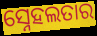
ସ୍ନେହଲତାର